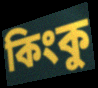
কিংকু